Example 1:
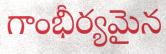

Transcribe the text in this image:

గాంభీర్యమైన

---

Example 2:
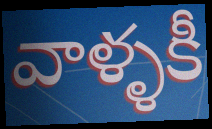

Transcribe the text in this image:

వాళ్ళకీ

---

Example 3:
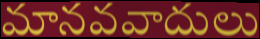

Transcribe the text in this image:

మానవవాదులు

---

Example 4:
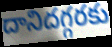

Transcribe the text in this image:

దానిదగ్గరకు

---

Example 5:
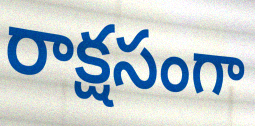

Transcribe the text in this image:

రాక్షసంగా